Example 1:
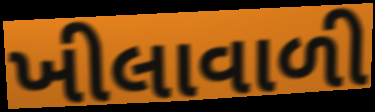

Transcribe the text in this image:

ખીલાવાળી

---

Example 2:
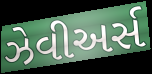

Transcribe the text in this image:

ઝેવીઅર્સ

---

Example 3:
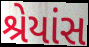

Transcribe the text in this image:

શ્રેયાંસ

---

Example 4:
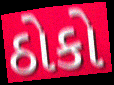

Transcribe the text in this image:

ઠોકો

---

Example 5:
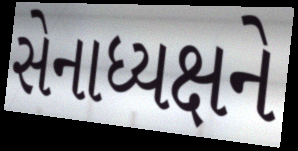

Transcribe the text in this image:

સેનાધ્યક્ષને